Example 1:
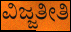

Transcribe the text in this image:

ವಿಜ್ಜತೀತಿ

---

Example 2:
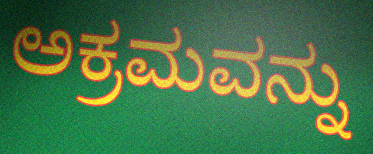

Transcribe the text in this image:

ಅಕ್ರಮವನ್ನು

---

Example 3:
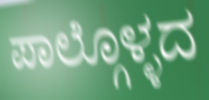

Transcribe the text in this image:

ಪಾಲ್ಗೊಳ್ಳದ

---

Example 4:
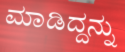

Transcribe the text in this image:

ಮಾಡಿದ್ದನ್ನು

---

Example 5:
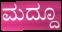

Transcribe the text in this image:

ಮದ್ದೂ